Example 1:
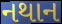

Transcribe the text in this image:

નથાન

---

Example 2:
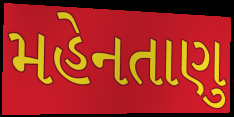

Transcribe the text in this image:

મહેનતાણુ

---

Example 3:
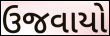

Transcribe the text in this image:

ઉજવાયો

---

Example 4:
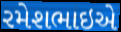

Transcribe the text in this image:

રમેશભાઇએ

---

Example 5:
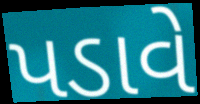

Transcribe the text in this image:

પડાવે